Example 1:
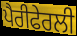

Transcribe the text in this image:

ਪੈਰੀਫੇਰਲੀ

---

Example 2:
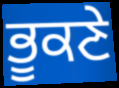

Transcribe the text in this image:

ਭੂਕਣੇ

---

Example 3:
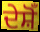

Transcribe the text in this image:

ਦੇਸ਼ੋਁ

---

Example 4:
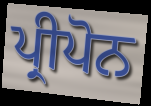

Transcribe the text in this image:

ਪ੍ਰੀਪੋਨ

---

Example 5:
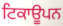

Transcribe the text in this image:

ਟਿਕਾਊਪਨ